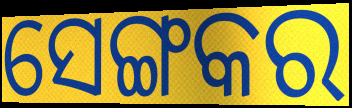
ସେଙ୍ଗକର